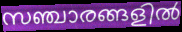
സഞ്ചാരങ്ങളിൽ